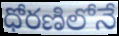
ధోరణిలోనే